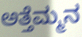
ಅತ್ತೆಮ್ಮನ